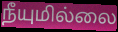
நீயுமில்லை